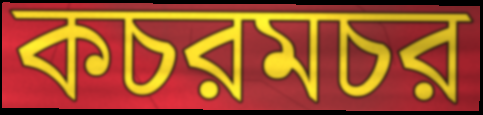
কচরমচর